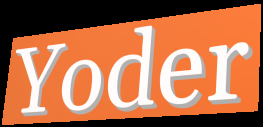
Yoder